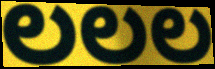
ಲಲಲ